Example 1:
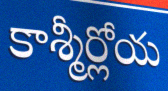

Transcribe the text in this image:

కాశ్మీర్లోయ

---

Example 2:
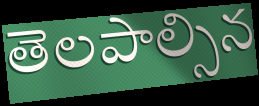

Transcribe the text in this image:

తెలపాల్సిన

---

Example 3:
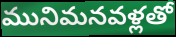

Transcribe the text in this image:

మునిమనవళ్లతో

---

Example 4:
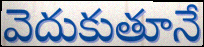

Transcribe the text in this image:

వెదుకుతూనే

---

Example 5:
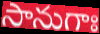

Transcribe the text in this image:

సానుగాః